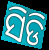
ସିଡି